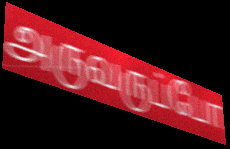
அருவருப்போ